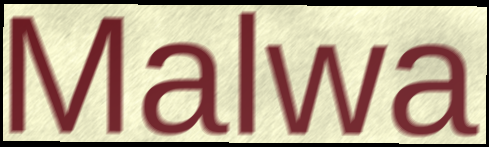
Malwa